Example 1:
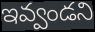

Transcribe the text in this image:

ఇవ్వండని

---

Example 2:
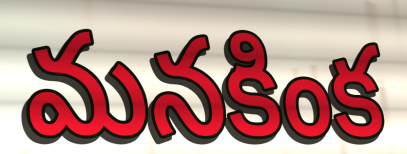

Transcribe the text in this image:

మనకింక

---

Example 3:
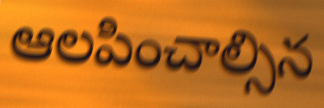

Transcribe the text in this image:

ఆలపించాల్సిన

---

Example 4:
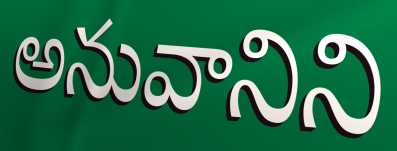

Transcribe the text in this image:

అనువానిని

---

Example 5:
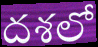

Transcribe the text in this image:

దశలో